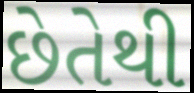
છેતેથી